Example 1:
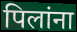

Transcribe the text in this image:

पिलांना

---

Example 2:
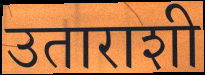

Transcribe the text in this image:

उताराशी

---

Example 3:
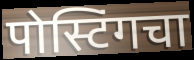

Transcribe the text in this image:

पोस्टिंगचा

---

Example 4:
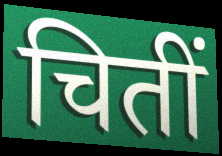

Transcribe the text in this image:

चितीं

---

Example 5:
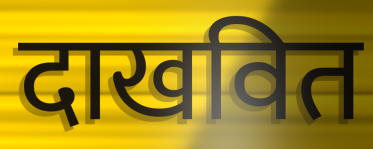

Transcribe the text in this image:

दाखवित